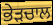
ਭੇੜਚਾਲ